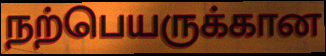
நற்பெயருக்கான